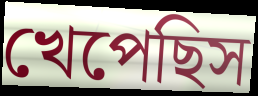
খেপেছিস